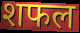
शफल